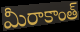
మీరాకాంత్